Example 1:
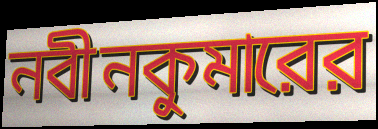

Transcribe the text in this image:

নবীনকুমারের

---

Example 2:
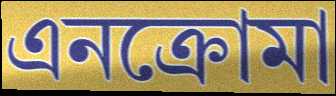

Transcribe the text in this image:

এনক্রোমা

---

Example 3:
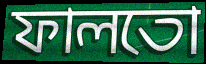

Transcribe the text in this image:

ফালতো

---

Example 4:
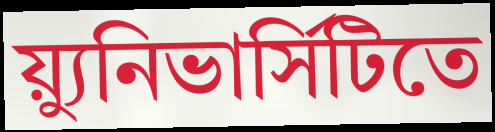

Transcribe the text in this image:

য়্যুনিভার্সিটিতে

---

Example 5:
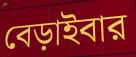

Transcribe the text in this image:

বেড়াইবার